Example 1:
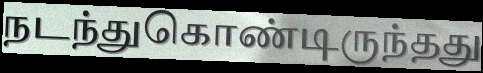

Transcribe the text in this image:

நடந்துகொண்டிருந்தது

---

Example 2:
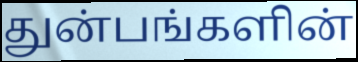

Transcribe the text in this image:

துன்பங்களின்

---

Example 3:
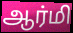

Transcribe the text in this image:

ஆர்மி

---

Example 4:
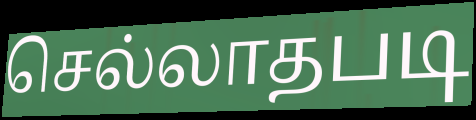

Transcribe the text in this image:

செல்லாதபடி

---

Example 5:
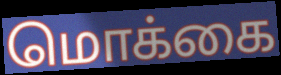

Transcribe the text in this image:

மொக்கை